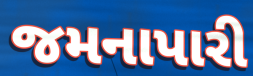
જમનાપારી